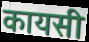
कायसी